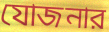
যোজনার